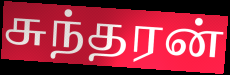
சுந்தரன்